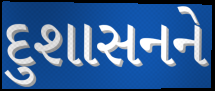
દુશાસનને